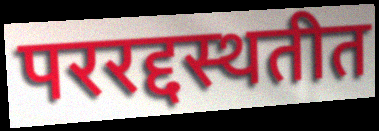
पररद्दस्थतीत